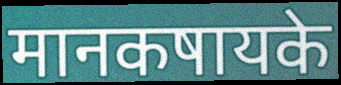
मानकषायके